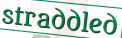
straddled